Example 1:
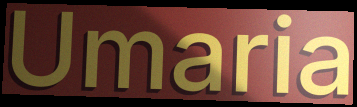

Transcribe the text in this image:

Umaria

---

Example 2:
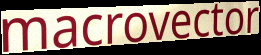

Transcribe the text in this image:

macrovector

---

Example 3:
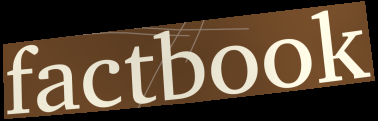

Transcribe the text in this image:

factbook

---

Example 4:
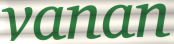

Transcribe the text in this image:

vanan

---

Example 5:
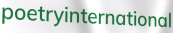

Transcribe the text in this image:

poetryinternational